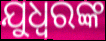
ଯୁଧ୍ୱରଙ୍କ